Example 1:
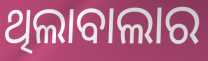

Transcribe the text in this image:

ଥିଲାବାଲାର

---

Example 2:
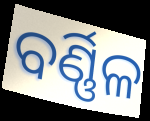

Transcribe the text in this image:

ବର୍ଣ୍ଣିଳ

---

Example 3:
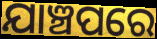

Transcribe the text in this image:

ଯାଞ୍ଚପରେ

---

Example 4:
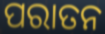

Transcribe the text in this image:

ପରାତନ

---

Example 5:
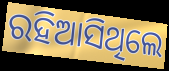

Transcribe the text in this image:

ରହିଆସିଥିଲେ